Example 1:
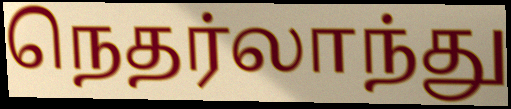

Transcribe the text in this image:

நெதர்லாந்து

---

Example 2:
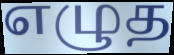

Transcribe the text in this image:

எழுத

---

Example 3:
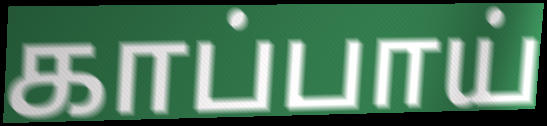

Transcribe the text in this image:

காப்பாய்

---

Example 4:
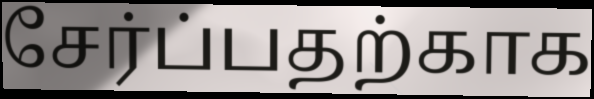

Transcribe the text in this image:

சேர்ப்பதற்காக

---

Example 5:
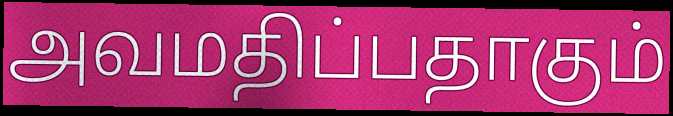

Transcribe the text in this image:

அவமதிப்பதாகும்